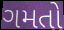
ગમતો